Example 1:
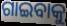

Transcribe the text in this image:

ଗାଇବାକୁ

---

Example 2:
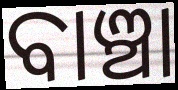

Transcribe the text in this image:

ବାଞ୍ଚା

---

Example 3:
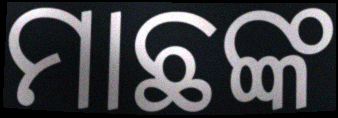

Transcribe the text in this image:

ମାଛଙ୍କ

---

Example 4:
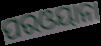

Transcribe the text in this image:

ପରଓୟାନା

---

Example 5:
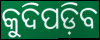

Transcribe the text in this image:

କୁଦିପଡ଼ିବ